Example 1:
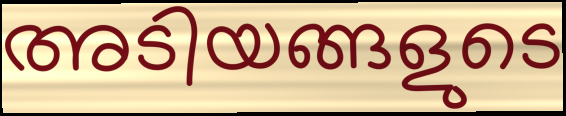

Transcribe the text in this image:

അടിയങ്ങളുടെ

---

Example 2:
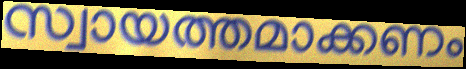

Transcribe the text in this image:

സ്വായത്തമാക്കണം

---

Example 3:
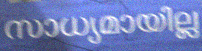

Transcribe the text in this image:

സാധ്യമായില്ല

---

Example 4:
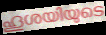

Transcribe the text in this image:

ഹൂശയിയുടെ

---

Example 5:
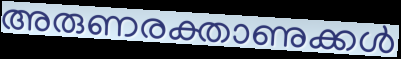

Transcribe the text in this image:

അരുണരക്താണുക്കൾ